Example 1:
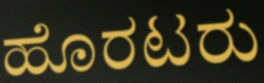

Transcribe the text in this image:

ಹೊರಟರು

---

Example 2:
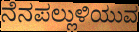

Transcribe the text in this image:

ನೆನಪಲ್ಲುಳಿಯುವ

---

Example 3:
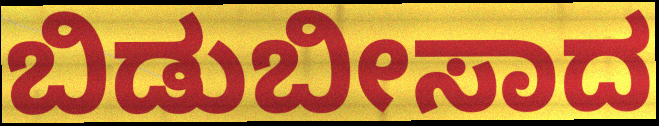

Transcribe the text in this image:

ಬಿಡುಬೀಸಾದ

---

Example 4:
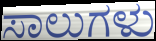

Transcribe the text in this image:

ಸಾಲುಗಳು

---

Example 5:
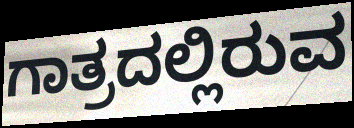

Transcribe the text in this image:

ಗಾತ್ರದಲ್ಲಿರುವ